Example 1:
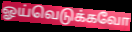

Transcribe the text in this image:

ஓய்வெடுக்கவோ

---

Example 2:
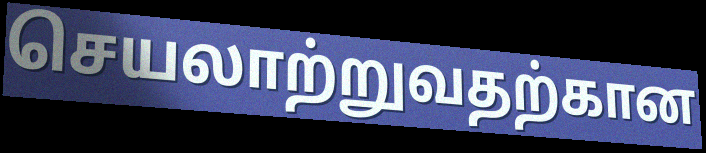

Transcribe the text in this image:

செயலாற்றுவதற்கான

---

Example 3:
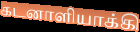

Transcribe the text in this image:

கடனாளியாக்கி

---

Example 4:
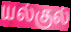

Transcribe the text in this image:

யல்குல்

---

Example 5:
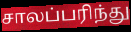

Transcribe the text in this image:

சாலப்பரிந்து